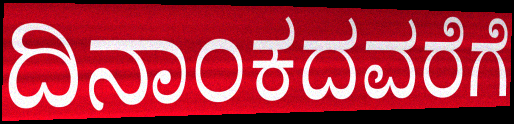
ದಿನಾಂಕದವರೆಗೆ